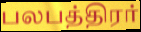
பலபத்திரர்